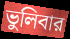
ভুলিবার